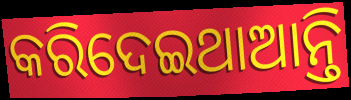
କରିଦେଇଥାଆନ୍ତି